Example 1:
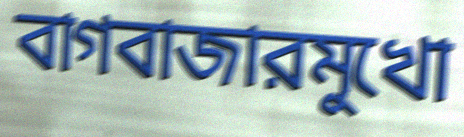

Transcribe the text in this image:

বাগবাজারমুখো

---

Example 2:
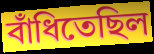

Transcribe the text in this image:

বাঁধিতেছিল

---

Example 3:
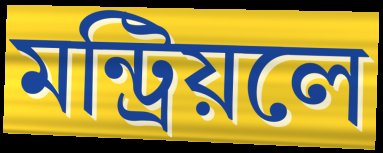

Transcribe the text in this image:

মন্ট্রিয়লে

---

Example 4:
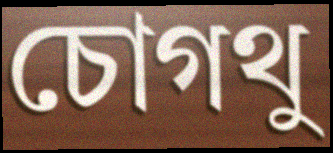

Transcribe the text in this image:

চোগথু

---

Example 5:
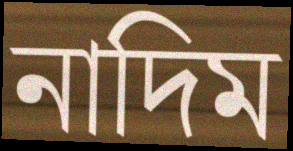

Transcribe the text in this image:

নাদিম